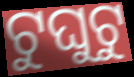
ଟୁଘୁଟୁ